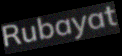
Rubayat